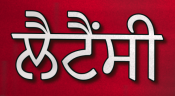
ਲੈਟੈਂਸੀ